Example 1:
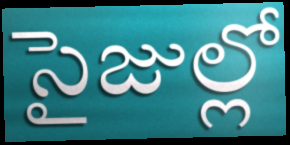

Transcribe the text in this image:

సైజుల్లో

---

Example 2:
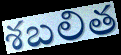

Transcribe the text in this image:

శబలిత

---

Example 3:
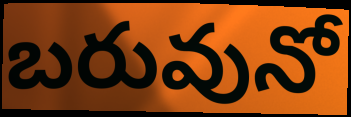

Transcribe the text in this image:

బరువునో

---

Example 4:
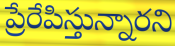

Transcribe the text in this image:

ప్రేరేపిస్తున్నారని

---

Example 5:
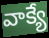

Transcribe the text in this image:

వాక్యే